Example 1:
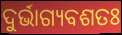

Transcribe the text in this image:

ଦୁର୍ଭାଗ୍ୟବଶତଃ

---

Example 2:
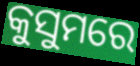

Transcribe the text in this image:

କୁସୁମରେ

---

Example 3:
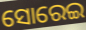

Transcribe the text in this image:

ସୋରେଇ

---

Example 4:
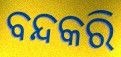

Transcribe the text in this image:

ବନ୍ଦକରି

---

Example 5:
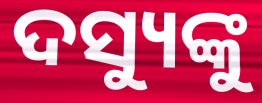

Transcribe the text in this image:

ଦସ୍ୟୁଙ୍କୁ